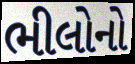
ભીલોનો